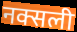
नक्सली